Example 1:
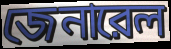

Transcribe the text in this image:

জেনারেল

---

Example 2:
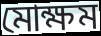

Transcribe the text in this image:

মোক্ষম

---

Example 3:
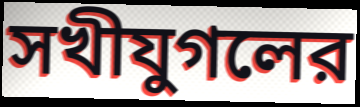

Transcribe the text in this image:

সখীযুগলের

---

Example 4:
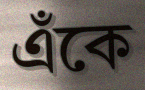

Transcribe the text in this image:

এঁকে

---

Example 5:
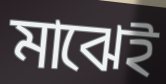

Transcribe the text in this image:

মাঝেই